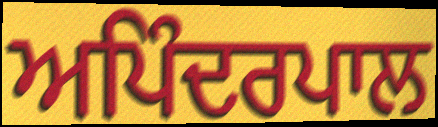
ਅਪਿੰਦਰਪਾਲ